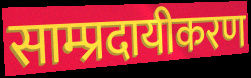
साम्प्रदायीकरण